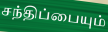
சந்திப்பையும்